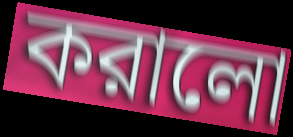
করালো